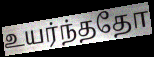
உயர்ந்ததோ